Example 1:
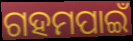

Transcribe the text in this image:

ଗହମପାଇଁ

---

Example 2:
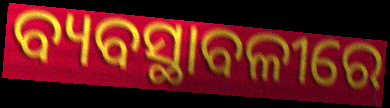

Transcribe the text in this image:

ବ୍ୟବସ୍ଥାବଳୀରେ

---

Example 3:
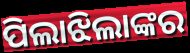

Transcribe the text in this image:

ପିଲାଝିଲାଙ୍କର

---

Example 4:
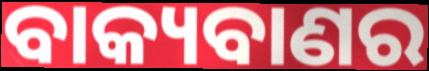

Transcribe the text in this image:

ବାକ୍ୟବାଣର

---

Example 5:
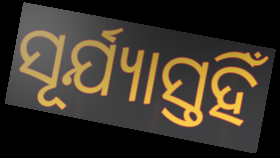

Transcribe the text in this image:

ସୂର୍ଯ୍ୟାସ୍ତହିଁ